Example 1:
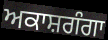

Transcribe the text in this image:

ਅਕਾਸ਼ਗੰਗਾ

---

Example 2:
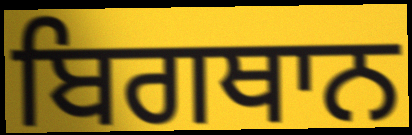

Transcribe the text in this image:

ਬਿਗਥਾਨ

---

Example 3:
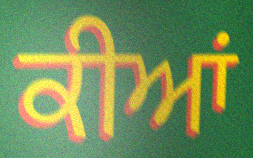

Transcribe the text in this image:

ਕੀਆਂ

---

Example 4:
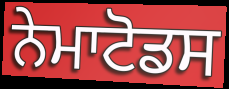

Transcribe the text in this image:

ਨੇਮਾਟੋਡਸ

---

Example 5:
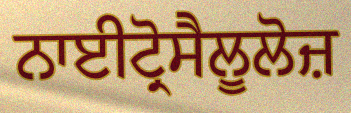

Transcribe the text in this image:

ਨਾਈਟ੍ਰੋਸੈਲੂਲੋਜ਼